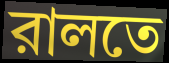
রালতে